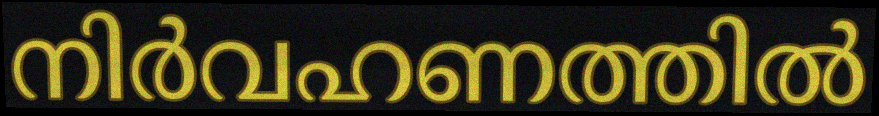
നിർവഹണത്തിൽ